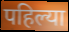
पहिल्या